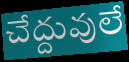
చేద్దువులే